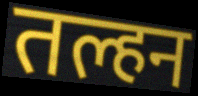
तल्हन